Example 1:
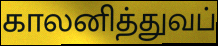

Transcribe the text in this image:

காலனித்துவப்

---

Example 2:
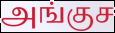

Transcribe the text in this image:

அங்குச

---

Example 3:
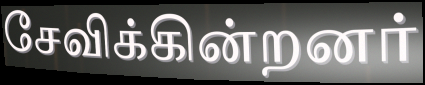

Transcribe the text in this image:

சேவிக்கின்றனர்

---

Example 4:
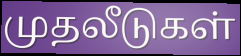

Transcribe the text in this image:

முதலீடுகள்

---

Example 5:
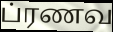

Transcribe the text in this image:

ப்ரணவ